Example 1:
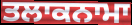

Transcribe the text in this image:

ਤਲਾਕਨਾਮਾ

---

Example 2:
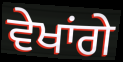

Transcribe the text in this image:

ਵੇਖਾਂਗੇ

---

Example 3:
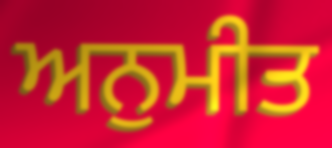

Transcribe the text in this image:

ਅਨੁਮੀਤ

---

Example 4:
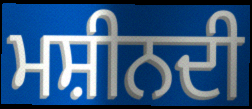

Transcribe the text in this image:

ਮਸ਼ੀਨਦੀ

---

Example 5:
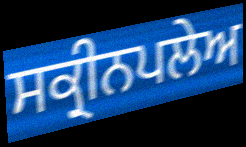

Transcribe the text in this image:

ਸਕ੍ਰੀਨਪਲੇਅ